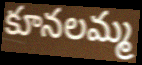
కూనలమ్మ